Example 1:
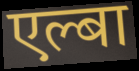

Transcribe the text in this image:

एल्बा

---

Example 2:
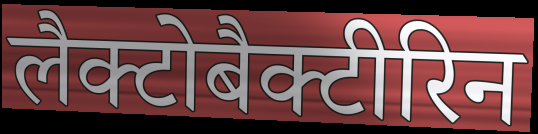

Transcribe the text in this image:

लैक्टोबैक्टीरिन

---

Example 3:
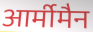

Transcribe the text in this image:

आर्मीमैन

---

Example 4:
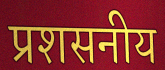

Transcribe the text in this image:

प्रशसनीय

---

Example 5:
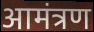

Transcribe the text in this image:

आमंत्रण